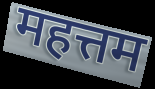
महत्तम